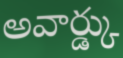
అవార్డ్కు